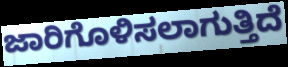
ಜಾರಿಗೊಳಿಸಲಾಗುತ್ತಿದೆ